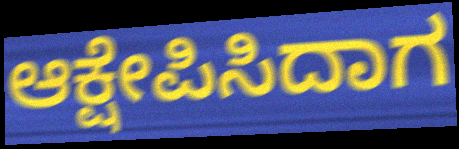
ಆಕ್ಷೇಪಿಸಿದಾಗ